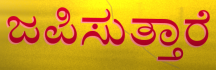
ಜಪಿಸುತ್ತಾರೆ